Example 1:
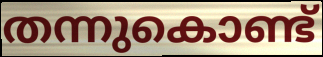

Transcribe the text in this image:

തന്നുകൊണ്ട്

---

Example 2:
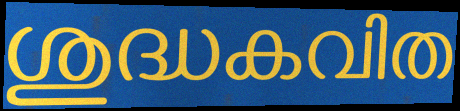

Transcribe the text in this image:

ശുദ്ധകവിത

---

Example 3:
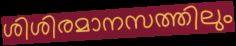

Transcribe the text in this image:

ശിശിരമാനസത്തിലും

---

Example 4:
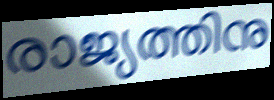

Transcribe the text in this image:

രാജ്യത്തിനു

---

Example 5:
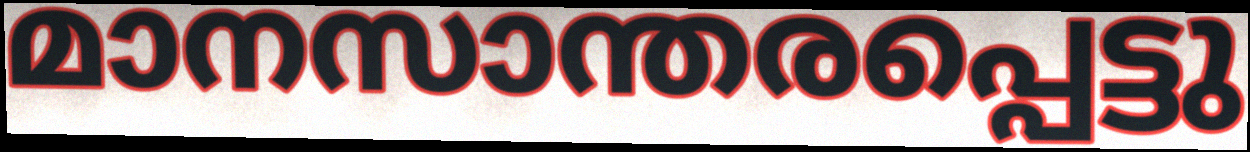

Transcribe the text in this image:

മാനസാന്തരപ്പെട്ടു